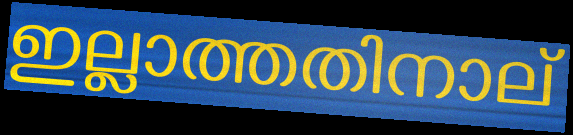
ഇല്ലാത്തതിനാല്